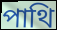
পাথি